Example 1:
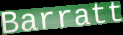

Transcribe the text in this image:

Barratt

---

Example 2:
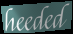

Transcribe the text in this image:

heeded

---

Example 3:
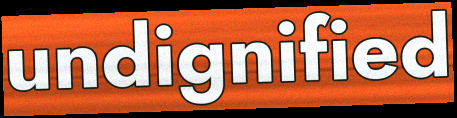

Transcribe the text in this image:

undignified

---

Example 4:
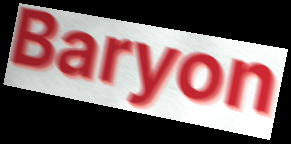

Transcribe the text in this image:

Baryon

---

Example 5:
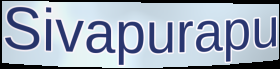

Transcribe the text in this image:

Sivapurapu